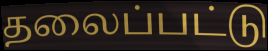
தலைப்பட்டு